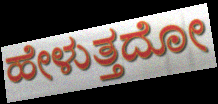
ಹೇಳುತ್ತದೋ